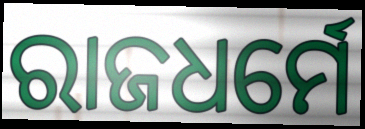
ରାଜଧର୍ମେ